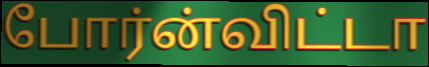
போர்ன்விட்டா